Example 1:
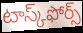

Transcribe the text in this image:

టాస్క్‌ఫోర్స్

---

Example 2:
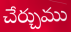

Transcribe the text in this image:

చేర్చుము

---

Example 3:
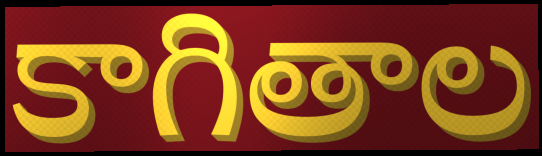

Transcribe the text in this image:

కాగితాల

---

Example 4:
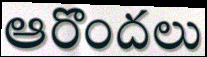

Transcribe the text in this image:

ఆరొందలు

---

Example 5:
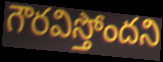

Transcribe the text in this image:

గౌరవిస్తోందని